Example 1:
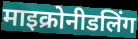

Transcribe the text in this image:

माइक्रोनीडलिंग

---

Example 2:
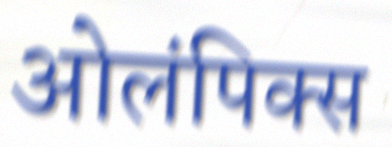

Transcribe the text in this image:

ओलंपिक्स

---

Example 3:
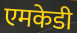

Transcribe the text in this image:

एमकेडी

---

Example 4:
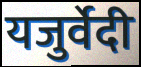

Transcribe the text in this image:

यजुर्वेदी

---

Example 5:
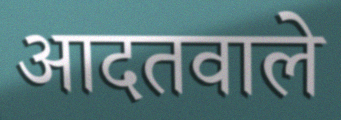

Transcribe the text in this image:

आदतवाले